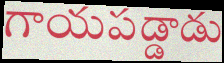
గాయపడ్డాడు